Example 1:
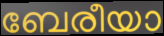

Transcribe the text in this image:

ബേരീയാ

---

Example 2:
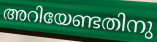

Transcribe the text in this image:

അറിയേണ്ടതിനു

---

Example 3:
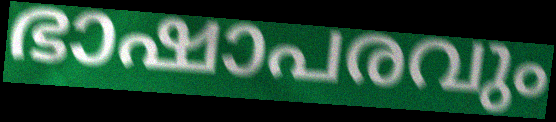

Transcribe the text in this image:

ഭാഷാപരവും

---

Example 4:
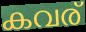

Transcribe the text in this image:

കവര്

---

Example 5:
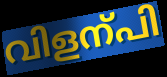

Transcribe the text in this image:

വിളന്പി